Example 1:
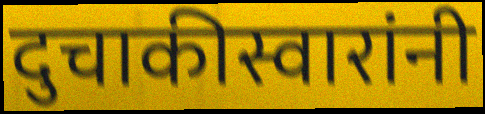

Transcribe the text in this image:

दुचाकीस्वारांनी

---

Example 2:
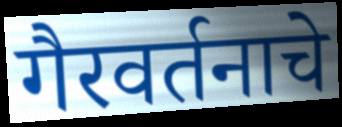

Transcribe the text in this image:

गैरवर्तनाचे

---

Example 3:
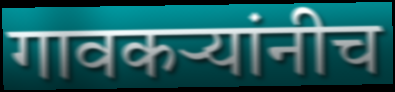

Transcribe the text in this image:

गावकऱ्यांनीच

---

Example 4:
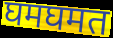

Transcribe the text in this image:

घमघमत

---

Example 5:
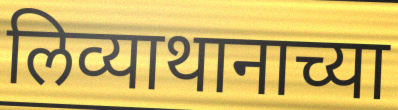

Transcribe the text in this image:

लिव्याथानाच्या